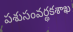
పశుసంవర్థకశాఖ